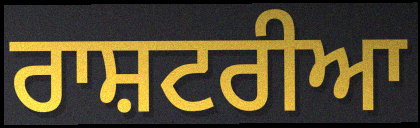
ਰਾਸ਼ਟਰੀਆ